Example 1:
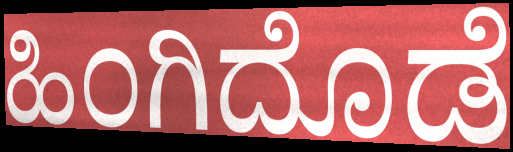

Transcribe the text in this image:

ಹಿಂಗಿದೊಡೆ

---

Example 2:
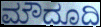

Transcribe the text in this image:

ಮೌದೂದಿ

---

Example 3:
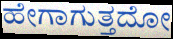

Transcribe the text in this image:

ಹೇಗಾಗುತ್ತದೋ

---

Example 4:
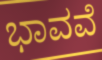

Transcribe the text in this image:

ಭಾವವೆ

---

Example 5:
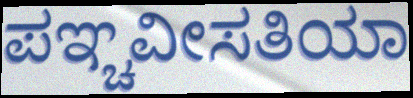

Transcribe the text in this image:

ಪಞ್ಚವೀಸತಿಯಾ